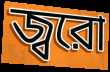
জ্বরো